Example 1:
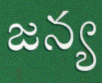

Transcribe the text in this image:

జన్య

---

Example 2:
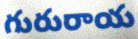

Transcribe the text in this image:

గురురాయ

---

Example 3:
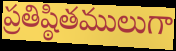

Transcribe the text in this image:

ప్రతిష్ఠితములుగా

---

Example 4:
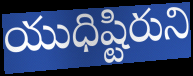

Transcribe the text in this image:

యుధిష్టిరుని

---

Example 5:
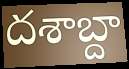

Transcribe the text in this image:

దశాబ్దా